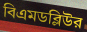
বিএমডব্লিউর